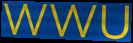
WWU